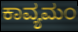
ಕಾವ್ಯಮಂ